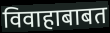
विवाहाबाबत